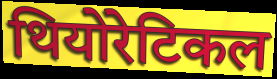
थियोरेटिकल